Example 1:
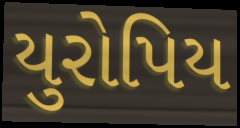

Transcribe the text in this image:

યુરોપિય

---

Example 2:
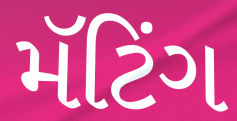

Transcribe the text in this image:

મૅટિંગ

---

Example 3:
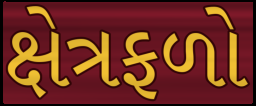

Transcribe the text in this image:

ક્ષેત્રફળો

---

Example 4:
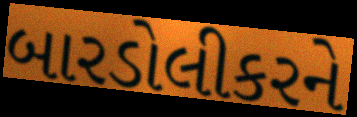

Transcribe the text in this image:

બારડોલીકરને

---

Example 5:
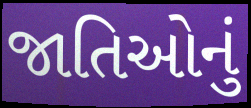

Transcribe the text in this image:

જાતિઓનું